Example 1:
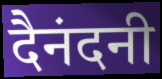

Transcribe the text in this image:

दैनंदनी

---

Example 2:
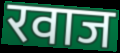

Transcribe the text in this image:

रवाज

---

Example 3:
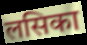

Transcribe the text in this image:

लसिका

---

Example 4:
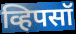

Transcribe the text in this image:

व्हिपसॉ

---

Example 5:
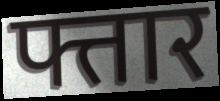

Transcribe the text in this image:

फ्तार